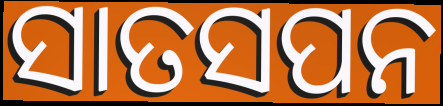
ସାତସପନ